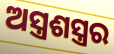
ଅସ୍ତ୍ରଶସ୍ତ୍ରର